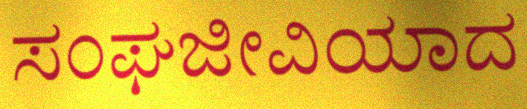
ಸಂಘಜೀವಿಯಾದ